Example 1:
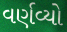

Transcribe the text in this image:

વર્ણવ્યો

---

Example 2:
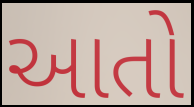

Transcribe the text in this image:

આતો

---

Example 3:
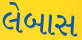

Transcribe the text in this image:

લેબાસ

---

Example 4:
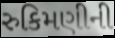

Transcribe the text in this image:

રુકિમણીની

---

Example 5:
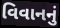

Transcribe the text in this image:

વિવાનનું